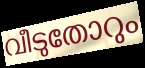
വീടുതോറും